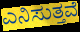
ಎನಿಸುತ್ತವೆ